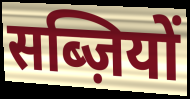
सब्ज़ियों